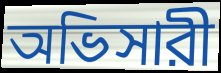
অভিসারী